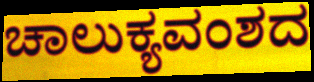
ಚಾಲುಕ್ಯವಂಶದ